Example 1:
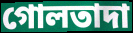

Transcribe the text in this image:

গোলতাদা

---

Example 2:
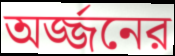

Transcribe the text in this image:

অর্জ্জনের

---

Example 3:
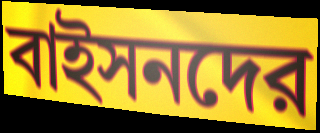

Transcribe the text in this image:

বাইসনদের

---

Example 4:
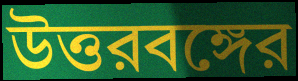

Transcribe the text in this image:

উত্তরবঙ্গের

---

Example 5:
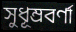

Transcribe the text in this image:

সুধূম্রবর্ণা